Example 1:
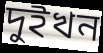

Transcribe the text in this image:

দুইখন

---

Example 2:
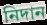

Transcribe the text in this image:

নিদান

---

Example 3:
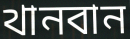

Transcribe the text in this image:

থানবান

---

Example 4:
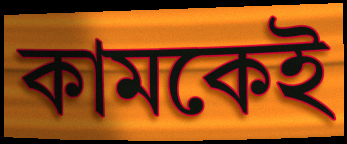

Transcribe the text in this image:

কামকেই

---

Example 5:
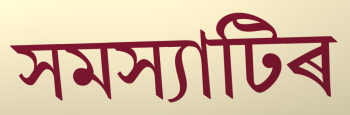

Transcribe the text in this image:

সমস্যাটিৰ